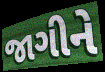
જાગીને